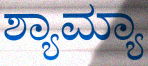
ಶ್ಯಾಮ್ಯಾ